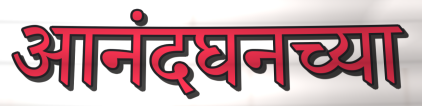
आनंदघनच्या